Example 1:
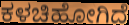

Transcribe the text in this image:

ಕಳಚಿಹೋಗಿದೆ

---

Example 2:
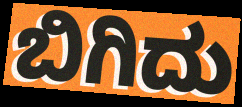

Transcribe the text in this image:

ಬಿಗಿದು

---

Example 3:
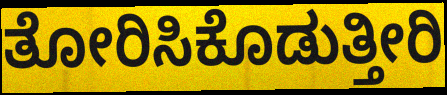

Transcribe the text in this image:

ತೋರಿಸಿಕೊಡುತ್ತೀರಿ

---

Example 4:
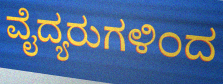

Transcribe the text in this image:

ವೈದ್ಯರುಗಳಿಂದ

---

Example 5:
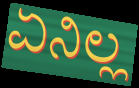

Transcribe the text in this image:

ಏನಿಲ್ಲ